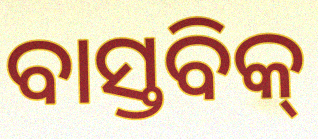
ବାସ୍ତବିକ୍